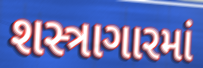
શસ્ત્રાગારમાં